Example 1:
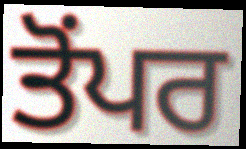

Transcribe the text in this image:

ਤੋਂਪਰ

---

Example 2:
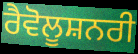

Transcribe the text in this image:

ਰੈਵੋਲੂਸ਼ਨਰੀ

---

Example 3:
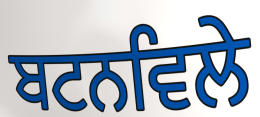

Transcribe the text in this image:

ਬਟਨਵਿਲੇ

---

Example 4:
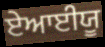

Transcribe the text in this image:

ਏਆਈਯੂ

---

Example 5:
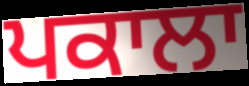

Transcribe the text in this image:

ਪਕਾਲਾ